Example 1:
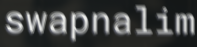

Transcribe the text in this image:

swapnalim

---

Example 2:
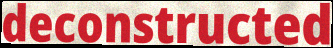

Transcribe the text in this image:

deconstructed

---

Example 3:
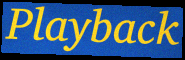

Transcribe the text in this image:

Playback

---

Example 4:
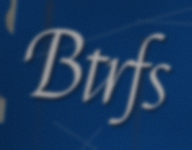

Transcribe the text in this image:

Btrfs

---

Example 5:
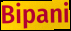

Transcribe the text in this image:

Bipani